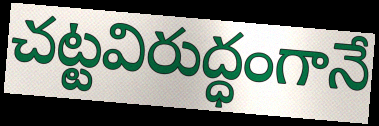
చట్టవిరుద్ధంగానే